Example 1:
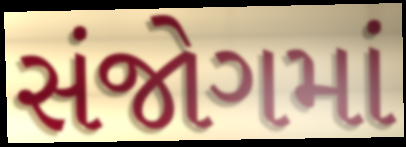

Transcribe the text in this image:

સંજોગમાં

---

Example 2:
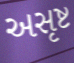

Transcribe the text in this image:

અસૃષ્ટ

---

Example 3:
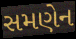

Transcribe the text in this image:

સમણેન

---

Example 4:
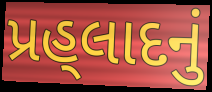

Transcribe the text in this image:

પ્રહ્‌લાદનું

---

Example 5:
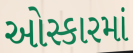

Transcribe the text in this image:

ઓસ્કારમાં